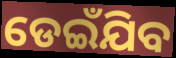
ଡେଇଁଯିବ